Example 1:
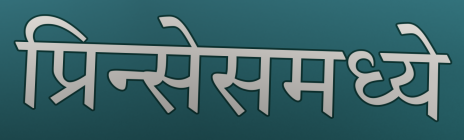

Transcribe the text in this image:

प्रिन्सेसमध्ये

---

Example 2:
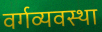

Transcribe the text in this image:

वर्गव्यवस्था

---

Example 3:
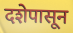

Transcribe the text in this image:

दशेपासून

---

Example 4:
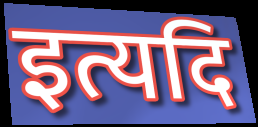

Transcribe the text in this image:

इत्यदि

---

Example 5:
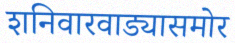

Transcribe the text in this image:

शनिवारवाड्यासमोर